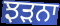
ਝੜਨਾ